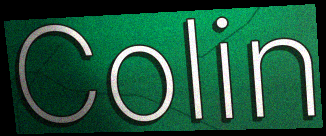
Colin